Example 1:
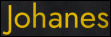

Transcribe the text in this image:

Johanes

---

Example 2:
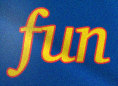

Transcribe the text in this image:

fun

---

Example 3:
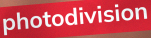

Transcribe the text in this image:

photodivision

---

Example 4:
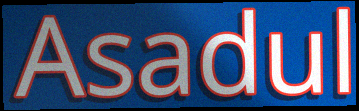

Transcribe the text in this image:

Asadul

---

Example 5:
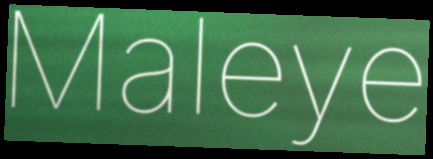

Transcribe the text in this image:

Maleye